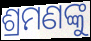
ଶ୍ରମଣଙ୍କୁ